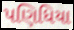
પણિધિયા